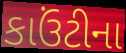
કાઉંટીના